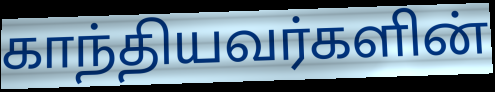
காந்தியவர்களின்